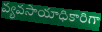
వ్యవసాయాధికారిగా